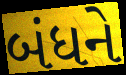
બંધને